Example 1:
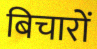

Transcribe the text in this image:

बिचारों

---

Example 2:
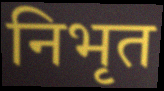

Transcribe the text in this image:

निभृत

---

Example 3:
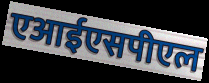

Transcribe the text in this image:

एआईएसपीएल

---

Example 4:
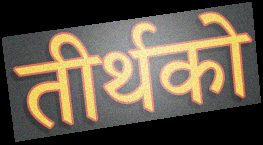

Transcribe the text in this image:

तीर्थको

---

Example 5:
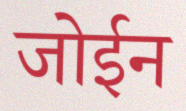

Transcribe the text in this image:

जोईन